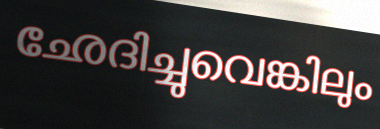
ഛേദിച്ചുവെങ്കിലും